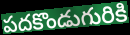
పదకొండుగురికి